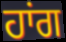
ਹਾਂਗ